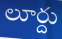
లూర్దు